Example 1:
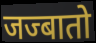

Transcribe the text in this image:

जज्बातो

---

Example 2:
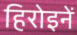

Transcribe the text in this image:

हिरोइनें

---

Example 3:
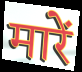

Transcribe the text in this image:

मारें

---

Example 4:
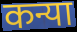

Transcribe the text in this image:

कन्या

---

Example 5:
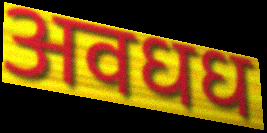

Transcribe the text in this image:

अवधध